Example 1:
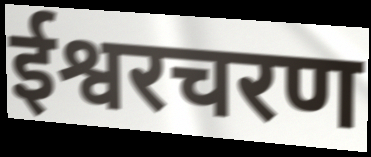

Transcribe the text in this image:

ईश्वरचरण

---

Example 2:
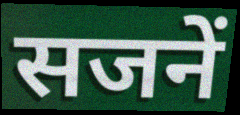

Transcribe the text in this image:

सजनें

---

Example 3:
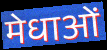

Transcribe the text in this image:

मेधाओं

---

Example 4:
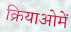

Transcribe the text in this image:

क्रियाओमें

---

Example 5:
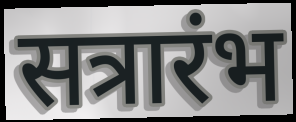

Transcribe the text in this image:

सत्रारंभ